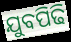
ଯୁବପିଢି